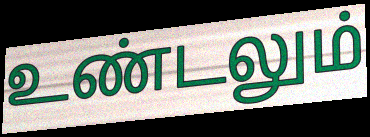
உண்டலும்